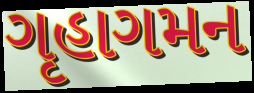
ગૃહાગમન